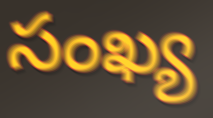
సంఖ్య